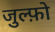
जुल्फ़ो